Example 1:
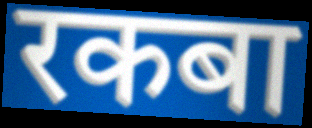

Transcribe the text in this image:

रकबा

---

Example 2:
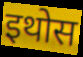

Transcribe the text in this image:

इथोस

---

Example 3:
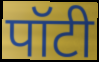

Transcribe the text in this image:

पॉटी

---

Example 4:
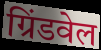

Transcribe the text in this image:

ग्रिंडवेल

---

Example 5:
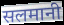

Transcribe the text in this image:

सलमानी